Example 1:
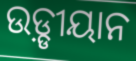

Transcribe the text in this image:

ଉଡ଼୍ଡୀୟାନ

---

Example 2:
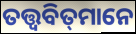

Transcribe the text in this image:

ତତ୍ତ୍ୱବିତ୍‌ମାନେ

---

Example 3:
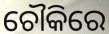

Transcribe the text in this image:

ଚୌକିରେ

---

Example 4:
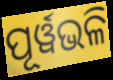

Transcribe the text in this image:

ପୂର୍ୱଭଳି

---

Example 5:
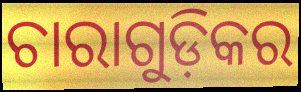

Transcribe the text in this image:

ଚାରାଗୁଡ଼ିକର